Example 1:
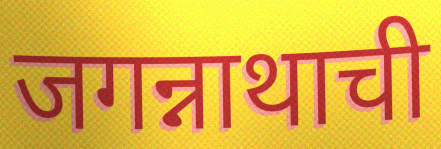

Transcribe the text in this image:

जगन्नाथाची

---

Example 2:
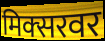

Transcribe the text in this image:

मिक्‍सरवर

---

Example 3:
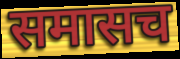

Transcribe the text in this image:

समासच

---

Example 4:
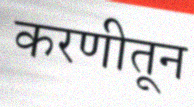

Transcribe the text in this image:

करणीतून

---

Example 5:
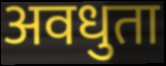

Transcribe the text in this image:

अवधुता